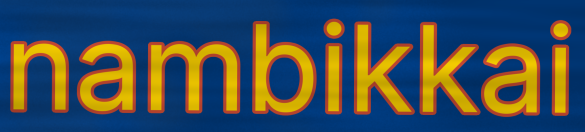
nambikkai